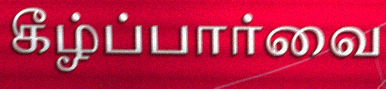
கீழ்ப்பார்வை